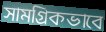
সামগ্ৰিকভাবে